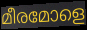
മീരമോളെ